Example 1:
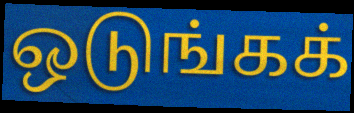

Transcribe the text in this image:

ஒடுங்கக்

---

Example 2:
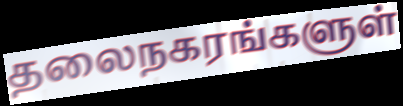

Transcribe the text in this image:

தலைநகரங்களுள்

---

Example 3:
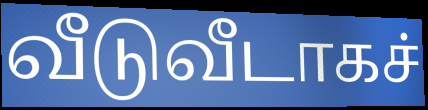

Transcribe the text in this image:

வீடுவீடாகச்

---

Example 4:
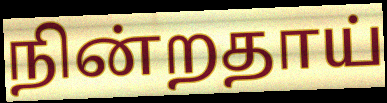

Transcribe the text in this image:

நின்றதாய்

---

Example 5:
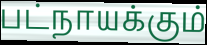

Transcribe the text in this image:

பட்நாயக்கும்